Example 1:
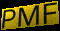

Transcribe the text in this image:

PMF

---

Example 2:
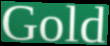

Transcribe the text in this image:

Gold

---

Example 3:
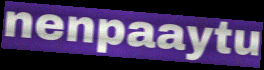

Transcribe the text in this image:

nenpaaytu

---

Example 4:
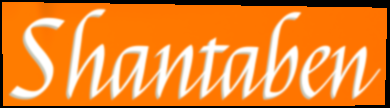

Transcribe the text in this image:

Shantaben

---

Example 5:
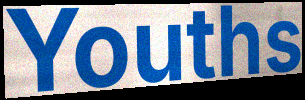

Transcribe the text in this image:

Youths